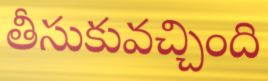
తీసుకువచ్చింది